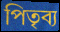
পিতৃব্য